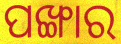
ପଙ୍ଖାର